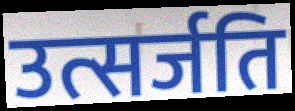
उत्सर्जति